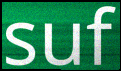
suf